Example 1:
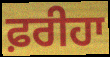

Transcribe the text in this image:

ਫ਼ਰੀਹਾ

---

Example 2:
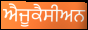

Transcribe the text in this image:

ਐਜੂਕੈਸੀਅਨ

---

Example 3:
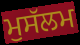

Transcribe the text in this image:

ਮੁਸੱਲਮ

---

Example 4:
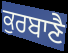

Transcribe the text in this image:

ਕੁਰਬਾਣੈ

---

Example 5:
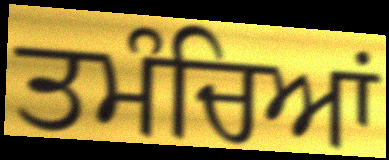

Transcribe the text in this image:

ਤਮੰਚਿਆਂ